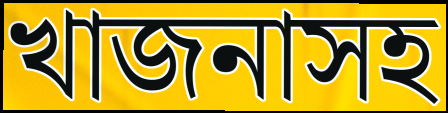
খাজনাসহ